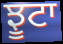
ਝੂਟਾ